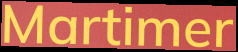
Martimer